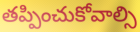
తప్పించుకోవాల్సి